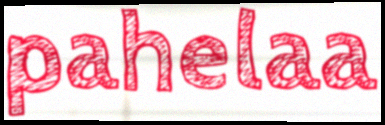
pahelaa